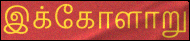
இக்கோளாறு